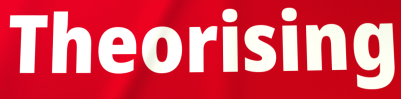
Theorising